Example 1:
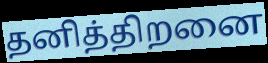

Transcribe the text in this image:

தனித்திறனை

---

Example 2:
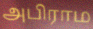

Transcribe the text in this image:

அபிராம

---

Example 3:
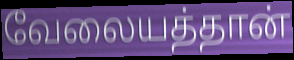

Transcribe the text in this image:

வேலையத்தான்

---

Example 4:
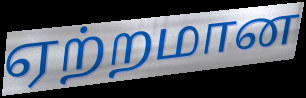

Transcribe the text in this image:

ஏற்றமான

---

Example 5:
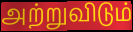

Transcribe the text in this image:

அற்றுவிடும்